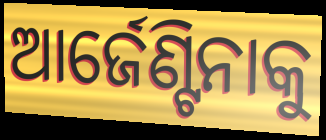
ଆର୍ଜେଣ୍ଟିନାକୁ